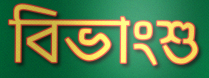
বিভাংশু